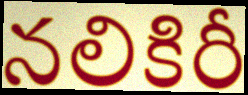
నలికిరీ